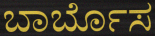
ಬಾರ್ಬೊಸ